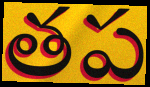
తప